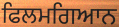
ਫਿਲਮਗਿਆਨ